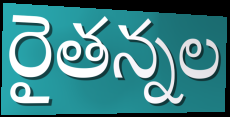
రైతన్నల